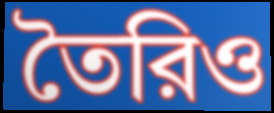
তৈরিও